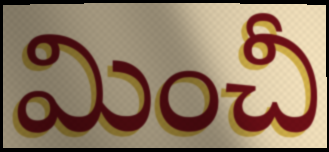
మించీ